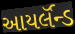
આયર્લૅન્ડ